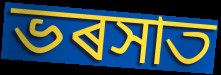
ভৰসাত